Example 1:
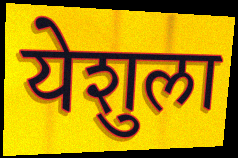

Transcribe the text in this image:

येशुला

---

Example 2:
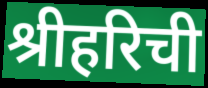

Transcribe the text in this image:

श्रीहरिची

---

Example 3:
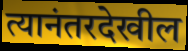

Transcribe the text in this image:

त्यानंतरदेखील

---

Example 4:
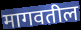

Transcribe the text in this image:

मागवतील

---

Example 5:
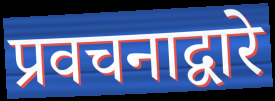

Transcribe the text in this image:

प्रवचनाद्वारे